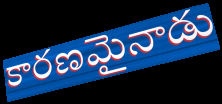
కారణమైనాడు